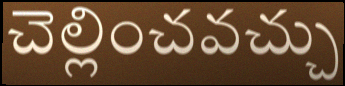
చెల్లించవచ్చు